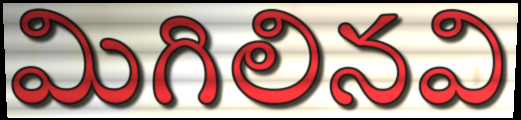
మిగిలినవి